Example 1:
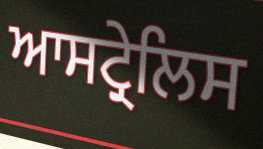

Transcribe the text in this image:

ਆਸਟ੍ਰੇਲਿਸ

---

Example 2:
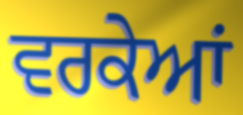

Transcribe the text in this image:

ਵਰਕੇਆਂ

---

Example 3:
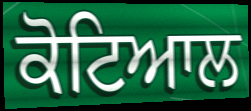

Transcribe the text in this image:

ਕੋਟਿਆਲ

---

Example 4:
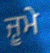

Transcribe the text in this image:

ਜ਼ੂਮੇ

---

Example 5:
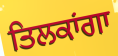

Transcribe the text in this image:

ਤਿਲਕਾਂਗਾ